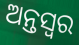
ଅନ୍ତସ୍ୱର